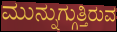
ಮುನ್ನುಗ್ಗುತ್ತಿರುವ